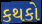
કથકો